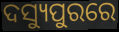
ଦସ୍ୟୁପୁରରେ